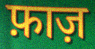
फ़ाज़